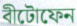
বীটোফেন